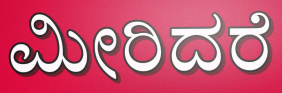
ಮೀರಿದರೆ